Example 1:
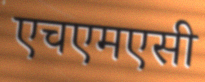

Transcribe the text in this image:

एचएमएसी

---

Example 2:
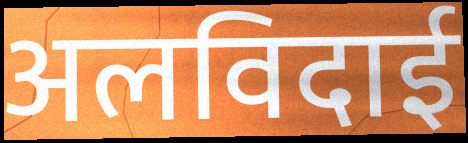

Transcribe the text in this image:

अलविदाई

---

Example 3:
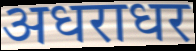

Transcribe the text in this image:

अधराधर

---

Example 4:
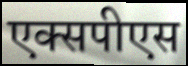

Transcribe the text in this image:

एक्सपीएस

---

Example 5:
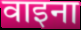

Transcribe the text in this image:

वाइना